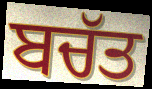
ਬਚੱਤ